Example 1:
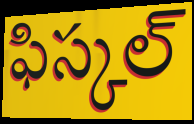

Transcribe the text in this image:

ఫిస్కల్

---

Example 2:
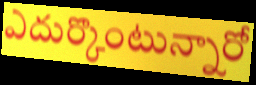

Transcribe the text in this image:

ఎదుర్కొంటున్నారో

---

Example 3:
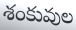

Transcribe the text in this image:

శంకువుల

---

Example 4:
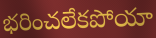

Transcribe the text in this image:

భరించలేకపోయా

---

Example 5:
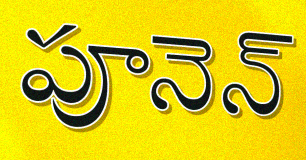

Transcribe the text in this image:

పూనెన్